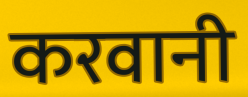
करवानी